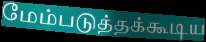
மேம்படுத்தக்கூடிய